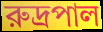
রুদ্রপাল